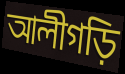
আলীগড়ি